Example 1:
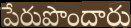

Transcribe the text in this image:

పేరుపొందారు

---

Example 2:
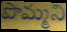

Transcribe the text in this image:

పొమ్మని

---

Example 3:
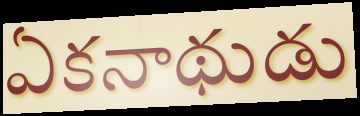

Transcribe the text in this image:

ఏకనాథుడు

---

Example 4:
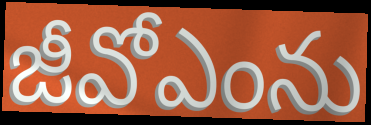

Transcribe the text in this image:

జీవోఎంను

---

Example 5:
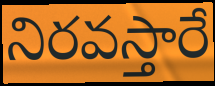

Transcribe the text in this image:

నిరవస్తారే